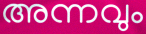
അന്നവും